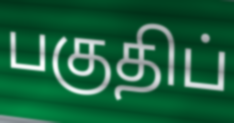
பகுதிப்